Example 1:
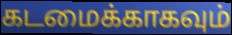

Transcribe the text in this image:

கடமைக்காகவும்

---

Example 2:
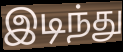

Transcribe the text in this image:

இடிந்து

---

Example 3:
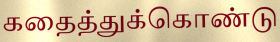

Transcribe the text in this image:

கதைத்துக்கொண்டு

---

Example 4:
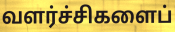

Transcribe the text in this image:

வளர்ச்சிகளைப்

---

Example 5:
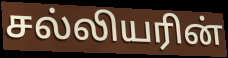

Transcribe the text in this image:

சல்லியரின்